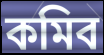
কমিব